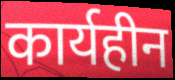
कार्यहीन